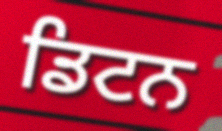
ਡਿਟਨ